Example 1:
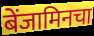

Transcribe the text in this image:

बेंजामिनचा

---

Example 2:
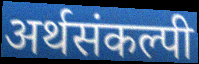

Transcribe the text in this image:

अर्थसंकल्पी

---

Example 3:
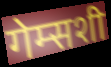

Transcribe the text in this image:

गेम्सशी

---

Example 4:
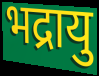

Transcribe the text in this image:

भद्रायु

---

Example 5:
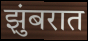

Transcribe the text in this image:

झुंबरात